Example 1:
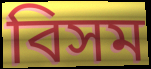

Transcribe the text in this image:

বিসম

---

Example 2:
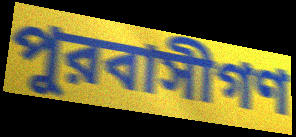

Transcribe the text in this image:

পুরবাসীগণ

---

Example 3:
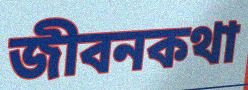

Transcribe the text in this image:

জীবনকথা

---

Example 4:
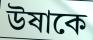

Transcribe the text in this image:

উষাকে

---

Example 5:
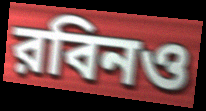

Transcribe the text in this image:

রবিনও